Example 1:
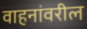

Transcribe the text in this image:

वाहनांवरील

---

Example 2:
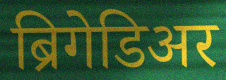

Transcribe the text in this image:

ब्रिगेडिअर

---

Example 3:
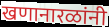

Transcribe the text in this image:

खणानारळांनी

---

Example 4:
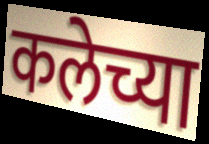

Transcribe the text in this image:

कलेच्या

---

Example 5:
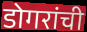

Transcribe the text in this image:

डोगरांची